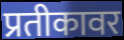
प्रतीकावर